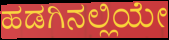
ಹಡಗಿನಲ್ಲಿಯೇ